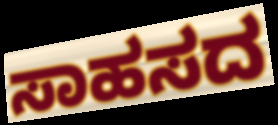
ಸಾಹಸದ